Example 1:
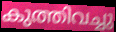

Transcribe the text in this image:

കുത്തിവച്ചു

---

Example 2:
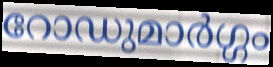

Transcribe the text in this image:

റോഡുമാർഗ്ഗം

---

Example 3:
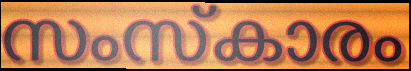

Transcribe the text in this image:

സംസ്‌കാരം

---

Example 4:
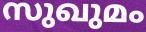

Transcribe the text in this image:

സുഖുമം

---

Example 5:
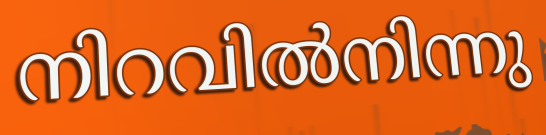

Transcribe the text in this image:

നിറവിൽനിന്നു